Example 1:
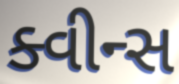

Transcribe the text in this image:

ક્વીન્સ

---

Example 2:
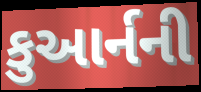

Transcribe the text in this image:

કુઆર્નની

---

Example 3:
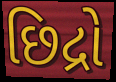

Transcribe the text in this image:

છિદ્રો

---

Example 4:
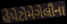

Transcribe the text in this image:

હેપેટોમેગેલીના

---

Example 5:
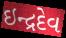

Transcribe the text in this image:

ઇન્દ્રદેવ